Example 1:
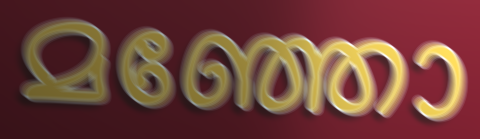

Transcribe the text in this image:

മഞ്ഞോ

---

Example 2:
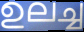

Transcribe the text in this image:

ഉലച്ച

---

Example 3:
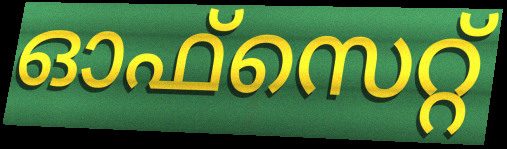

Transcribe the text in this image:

ഓഫ്സെറ്റ്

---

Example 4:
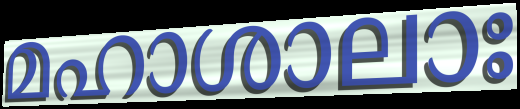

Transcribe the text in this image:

മഹാശാലാഃ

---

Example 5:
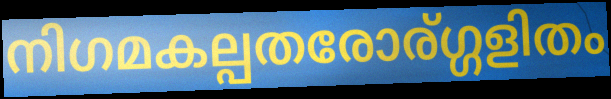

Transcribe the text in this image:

നിഗമകല്പതരോര്ഗ്ഗളിതം